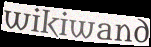
wikiwand